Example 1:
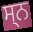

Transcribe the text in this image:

ਸ੍ਨ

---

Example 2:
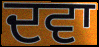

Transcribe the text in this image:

ਦਵਾ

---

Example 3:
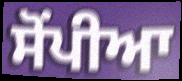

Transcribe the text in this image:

ਸੋਂਪੀਆ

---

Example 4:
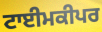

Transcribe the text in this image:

ਟਾਈਮਕੀਪਰ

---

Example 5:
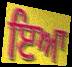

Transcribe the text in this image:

ਇਆ